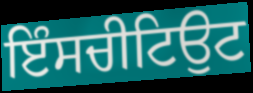
ਇੰਸਚੀਟਿਉਟ